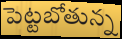
పెట్టబోతున్న